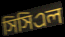
সিসিএল